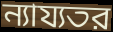
ন্যায্যতর